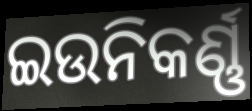
ଇଉନିକର୍ଣ୍ଣ